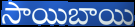
సాయిబాయి